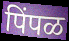
पिंपळ